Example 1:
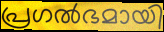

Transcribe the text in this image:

പ്രഗൽഭമായി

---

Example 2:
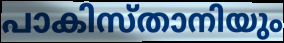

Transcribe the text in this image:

പാകിസ്താനിയും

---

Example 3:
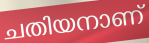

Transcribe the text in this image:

ചതിയനാണ്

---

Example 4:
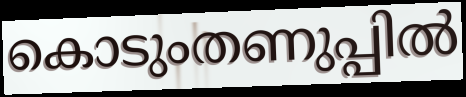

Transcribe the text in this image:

കൊടുംതണുപ്പിൽ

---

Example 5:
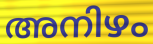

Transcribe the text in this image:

അനിഴം